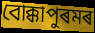
বোক্কাপুৰমৰ